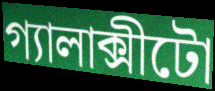
গ্যালাক্সীটো